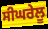
ਸੀਘਰੇਲੂ